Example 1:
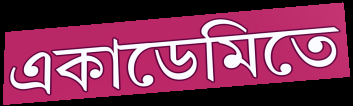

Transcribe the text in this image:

একাডেমিতে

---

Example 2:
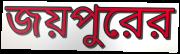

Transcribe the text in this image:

জয়পুরের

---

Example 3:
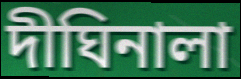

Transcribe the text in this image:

দীঘিনালা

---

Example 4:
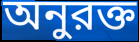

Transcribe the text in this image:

অনুরক্ত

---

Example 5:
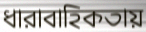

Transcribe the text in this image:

ধারাবাহিকতায়